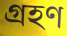
গ্ৰহণ